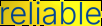
reliable